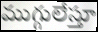
ముగ్గులేస్తూ